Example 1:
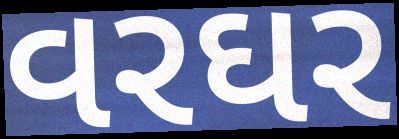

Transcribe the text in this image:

વરઘર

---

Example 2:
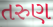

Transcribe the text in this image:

તરુણ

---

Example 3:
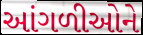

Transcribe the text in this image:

આંગળીઓને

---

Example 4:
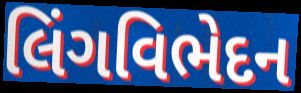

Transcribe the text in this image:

લિંગવિભેદન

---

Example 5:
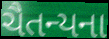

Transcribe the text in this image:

ચૈતન્યના